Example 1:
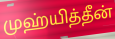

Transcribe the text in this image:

முஹ்யித்தீன்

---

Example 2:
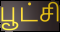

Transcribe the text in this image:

பூட்சி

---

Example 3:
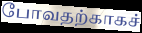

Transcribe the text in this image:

போவதற்காகச்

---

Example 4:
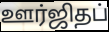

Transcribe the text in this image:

ஊர்ஜிதப்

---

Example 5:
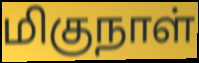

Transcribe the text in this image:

மிகுநாள்